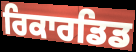
ਰਿਕਾਰਡਿਡ